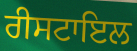
ਰੀਸਟਾਇਲ